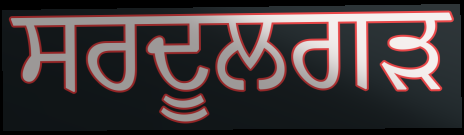
ਸਰਦੂਲਗੜ